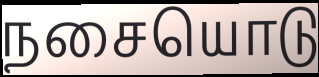
நசையொடு